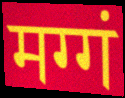
मग्गं